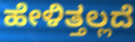
ಹೇಳಿತ್ತಲ್ಲದೆ